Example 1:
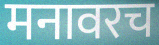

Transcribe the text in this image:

मनावरच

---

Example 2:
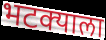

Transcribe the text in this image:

भटक्याला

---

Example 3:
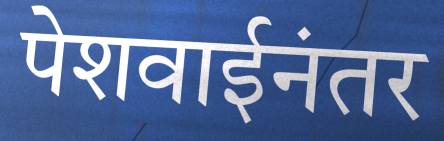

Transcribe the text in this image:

पेशवाईनंतर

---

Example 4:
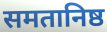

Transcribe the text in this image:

समतानिष्ठ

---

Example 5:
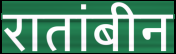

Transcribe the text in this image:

रातांबीन